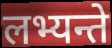
लभ्यन्ते